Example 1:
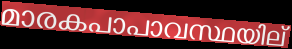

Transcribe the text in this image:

മാരകപാപാവസ്ഥയില്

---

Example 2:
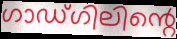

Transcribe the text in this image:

ഗാഡ്ഗിലിന്റെ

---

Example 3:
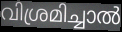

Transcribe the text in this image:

വിശ്രമിച്ചാൽ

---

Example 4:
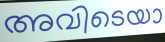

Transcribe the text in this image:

അവിടെയാ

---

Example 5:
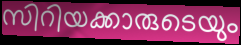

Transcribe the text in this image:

സിറിയക്കാരുടെയും